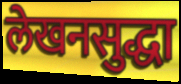
लेखनसुद्धा